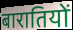
बारातियों